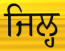
ਜਿਲ੍ਹ